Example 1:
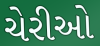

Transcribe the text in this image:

ચેરીઓ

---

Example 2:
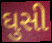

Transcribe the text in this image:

ઘુસી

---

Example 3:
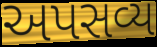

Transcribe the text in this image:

અપસવ્ય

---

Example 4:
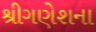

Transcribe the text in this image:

શ્રીગણેશના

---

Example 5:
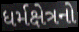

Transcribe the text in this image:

ધર્મક્ષેત્રનો